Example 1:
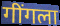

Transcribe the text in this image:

गींगला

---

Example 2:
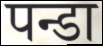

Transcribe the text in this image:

पन्डा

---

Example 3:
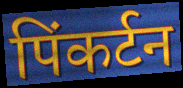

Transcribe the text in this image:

पिंकर्टन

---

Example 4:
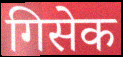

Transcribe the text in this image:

गिसेक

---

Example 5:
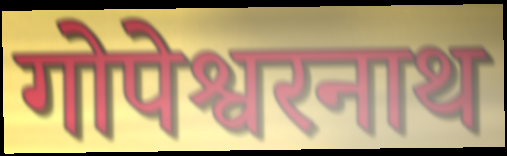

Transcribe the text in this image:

गोपेश्वरनाथ